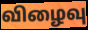
விழைவு